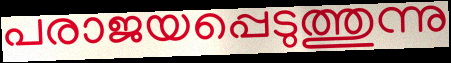
പരാജയപ്പെടുത്തുന്നു